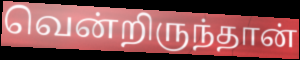
வென்றிருந்தான்